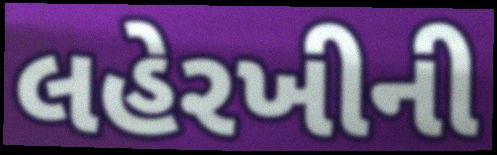
લહેરખીની